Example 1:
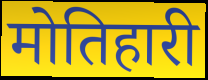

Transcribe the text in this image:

मोतिहारी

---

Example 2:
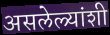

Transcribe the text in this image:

असलेल्यांशी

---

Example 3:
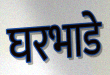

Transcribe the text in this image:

घरभाडे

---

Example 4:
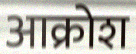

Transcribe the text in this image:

आक्रोश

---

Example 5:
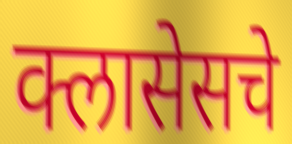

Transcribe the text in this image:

क्लासेसचे